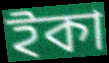
ইকা